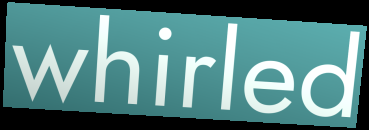
whirled